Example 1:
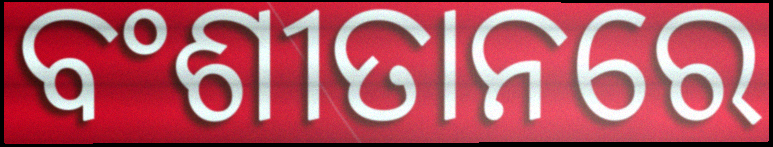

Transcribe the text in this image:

ବଂଶୀତାନରେ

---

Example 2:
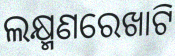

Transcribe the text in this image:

ଲକ୍ଷ୍ମଣରେଖାଟି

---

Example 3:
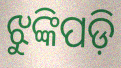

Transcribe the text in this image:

ଝୁଙ୍କିପଡ଼ି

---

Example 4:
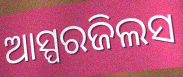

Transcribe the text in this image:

ଆସ୍ପରଜିଲସ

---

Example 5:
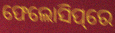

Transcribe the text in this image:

ଫେଲୋସିପ୍‌ରେ